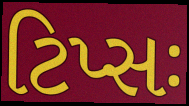
ટિપ્સઃ